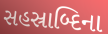
સહસ્રાબ્દિના